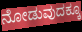
ನೋಡುವುದಕ್ಕೂ